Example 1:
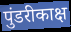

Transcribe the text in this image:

पुंडरीकाक्ष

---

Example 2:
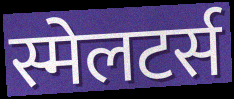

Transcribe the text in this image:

स्मेलटर्स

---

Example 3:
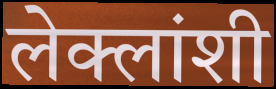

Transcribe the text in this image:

लेक्लांशी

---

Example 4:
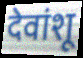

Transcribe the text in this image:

देवांशू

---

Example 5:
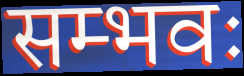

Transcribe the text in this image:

सम्भवः